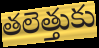
తలెత్తుకు